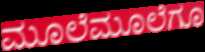
ಮೂಲೆಮೂಲೆಗೂ